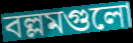
বল্লমগুলো